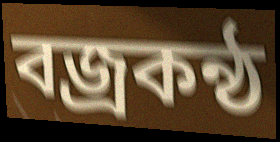
বজ্রকন্ঠ